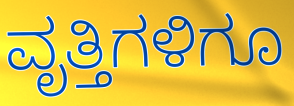
ವೃತ್ತಿಗಳಿಗೂ